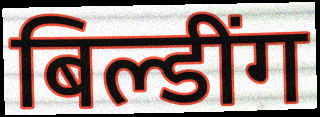
बिल्डींग